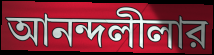
আনন্দলীলার